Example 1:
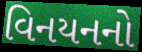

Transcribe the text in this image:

વિનયનનો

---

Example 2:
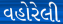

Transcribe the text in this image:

વહોરેલી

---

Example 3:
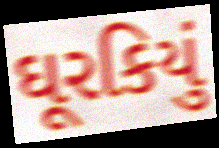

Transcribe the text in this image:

ઘૂરકિયું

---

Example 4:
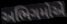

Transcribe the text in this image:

અભિગમોએ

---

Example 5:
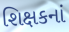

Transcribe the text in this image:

શિક્ષકનાં